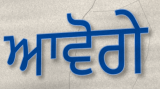
ਆਵੋਗੇ